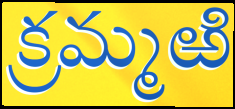
క్రమ్మఱి